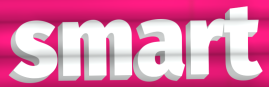
smart